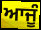
ਆਜੂੰ